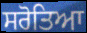
ਸਰੋਤਿਆ